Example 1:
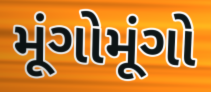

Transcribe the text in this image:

મૂંગોમૂંગો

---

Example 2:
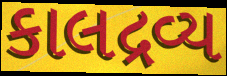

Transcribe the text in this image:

કાલદ્રવ્ય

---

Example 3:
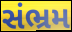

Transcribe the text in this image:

સંભ્રમ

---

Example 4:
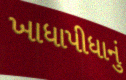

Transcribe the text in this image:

ખાધાપીધાનું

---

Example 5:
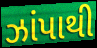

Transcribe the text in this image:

ઝાંપાથી